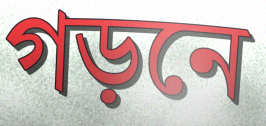
গড়নে